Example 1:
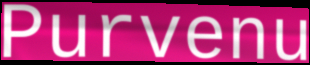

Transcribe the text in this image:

Purvenu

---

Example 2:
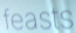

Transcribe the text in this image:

feasts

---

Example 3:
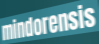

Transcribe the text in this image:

mindorensis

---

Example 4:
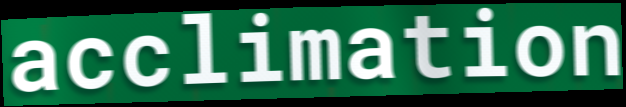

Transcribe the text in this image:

acclimation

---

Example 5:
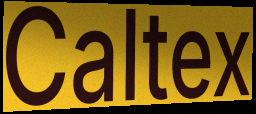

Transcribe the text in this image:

Caltex